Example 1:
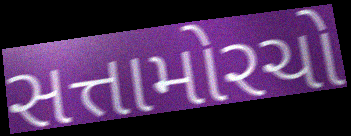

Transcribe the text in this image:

સત્તામોરચો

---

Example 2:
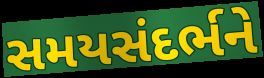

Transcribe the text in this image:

સમયસંદર્ભને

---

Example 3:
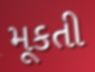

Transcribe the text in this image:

મૂકતી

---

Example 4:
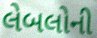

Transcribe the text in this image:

લેબલોની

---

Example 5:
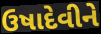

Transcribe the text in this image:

ઉષાદેવીને